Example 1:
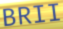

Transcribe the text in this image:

BRII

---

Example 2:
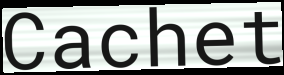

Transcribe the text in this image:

Cachet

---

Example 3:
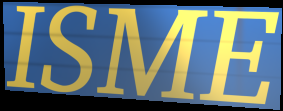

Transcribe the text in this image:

ISME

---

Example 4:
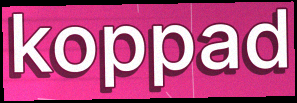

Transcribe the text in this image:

koppad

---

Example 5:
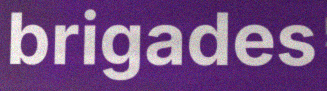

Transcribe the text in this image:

brigades